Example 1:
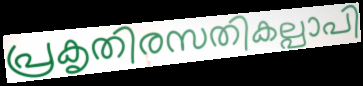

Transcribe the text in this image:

പ്രകൃതിരസതികല്പാപി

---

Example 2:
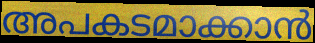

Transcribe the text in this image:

അപകടമാക്കാൻ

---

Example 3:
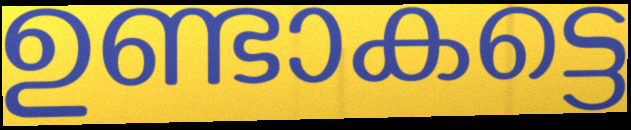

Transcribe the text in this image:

ഉണ്ടാകട്ടെ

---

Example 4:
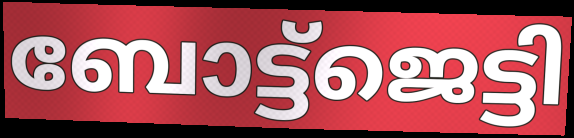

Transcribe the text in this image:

ബോട്ട്ജെട്ടി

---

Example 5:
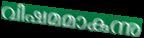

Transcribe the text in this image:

വിഷമമാകുന്നു